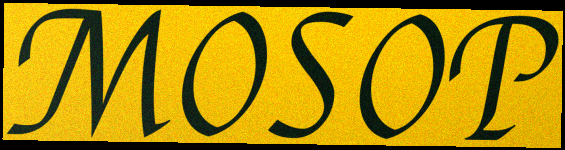
MOSOP